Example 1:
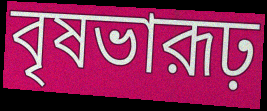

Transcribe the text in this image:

বৃষভারূঢ়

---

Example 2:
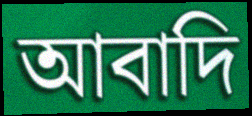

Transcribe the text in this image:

আবাদি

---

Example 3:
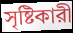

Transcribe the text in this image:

সৃষ্টিকারী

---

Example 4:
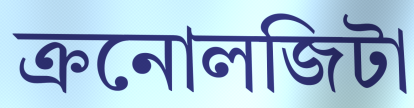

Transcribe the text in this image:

ক্রনোলজিটা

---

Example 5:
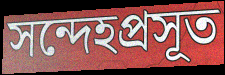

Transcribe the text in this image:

সন্দেহপ্রসূত